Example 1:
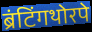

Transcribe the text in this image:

ब्रंटिंगथोरपे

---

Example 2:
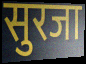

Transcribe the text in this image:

सुरजा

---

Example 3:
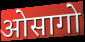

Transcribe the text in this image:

ओसागो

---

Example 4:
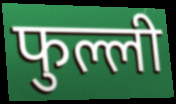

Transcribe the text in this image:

फुल्ली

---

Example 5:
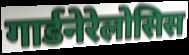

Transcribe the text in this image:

गार्डनेरेलोसिस